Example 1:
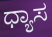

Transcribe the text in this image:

ಧ್ಯಾಸ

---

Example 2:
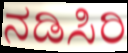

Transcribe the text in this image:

ನಡಿಸಿರಿ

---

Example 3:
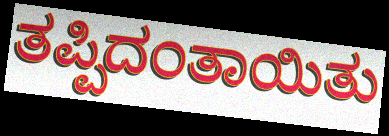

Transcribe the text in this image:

ತಪ್ಪಿದಂತಾಯಿತು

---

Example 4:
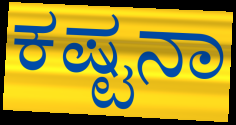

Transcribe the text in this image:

ಕಷ್ಟನಾ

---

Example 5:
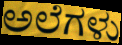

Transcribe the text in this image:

ಅಲೆಗಳು